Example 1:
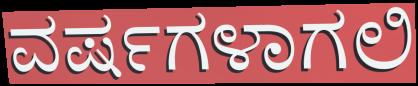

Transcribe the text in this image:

ವರ್ಷಗಳಾಗಲಿ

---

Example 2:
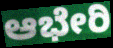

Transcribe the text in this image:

ಆಭೇರಿ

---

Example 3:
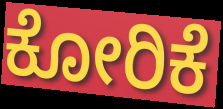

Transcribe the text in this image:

ಕೋರಿಕೆ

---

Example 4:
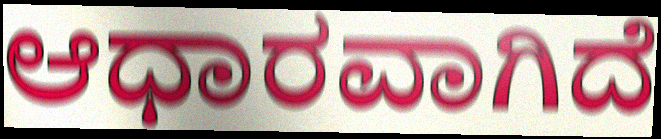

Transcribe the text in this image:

ಆಧಾರವಾಗಿದೆ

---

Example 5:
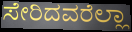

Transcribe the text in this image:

ಸೇರಿದವರೆಲ್ಲಾ